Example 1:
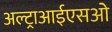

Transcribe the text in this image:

अल्ट्राआईएसओ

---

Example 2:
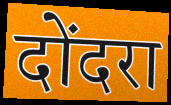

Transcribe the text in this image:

दोंदरा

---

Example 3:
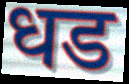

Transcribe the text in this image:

धड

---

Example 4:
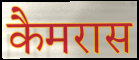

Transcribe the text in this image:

कैमरास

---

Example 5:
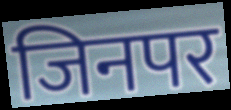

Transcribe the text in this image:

जिनपर